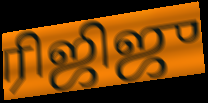
ரிஜிஜு